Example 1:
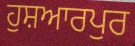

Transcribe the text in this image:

ਹੁਸ਼ਆਰਪੁਰ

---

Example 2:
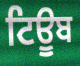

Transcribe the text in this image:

ਟਿਊੂਬ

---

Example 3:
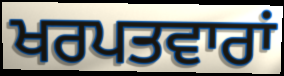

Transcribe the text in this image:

ਖਰਪਤਵਾਰਾਂ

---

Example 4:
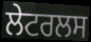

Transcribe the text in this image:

ਲੇਟਰਲਸ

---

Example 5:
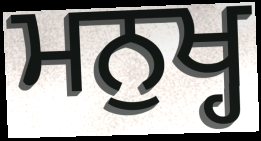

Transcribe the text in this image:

ਮਨੁਖ੍ਹ